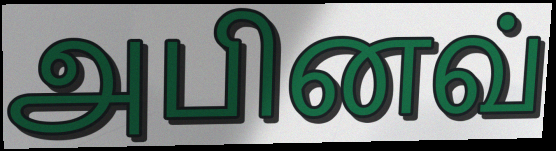
அபினவ்